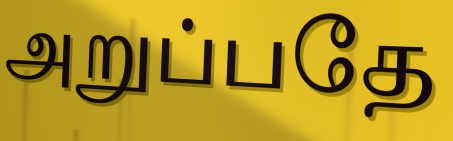
அறுப்பதே